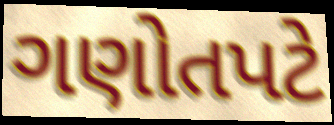
ગણોતપટે